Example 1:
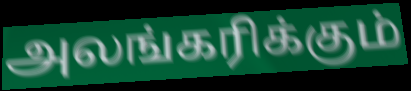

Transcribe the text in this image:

அலங்கரிக்கும்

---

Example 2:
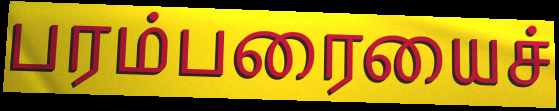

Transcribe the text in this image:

பரம்பரையைச்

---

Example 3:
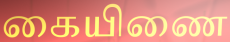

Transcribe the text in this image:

கையிணை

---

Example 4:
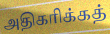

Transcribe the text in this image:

அதிகரிக்கத்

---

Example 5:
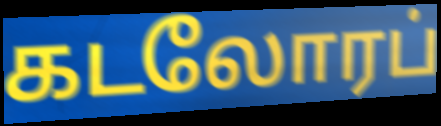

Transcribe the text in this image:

கடலோரப்